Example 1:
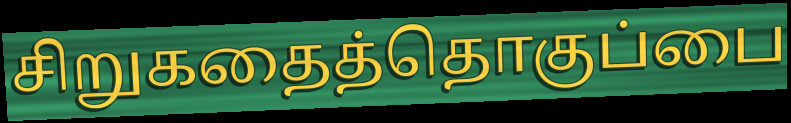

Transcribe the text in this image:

சிறுகதைத்தொகுப்பை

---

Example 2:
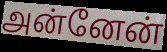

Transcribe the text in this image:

அன்னேன்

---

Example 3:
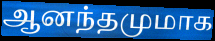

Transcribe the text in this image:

ஆனந்தமுமாக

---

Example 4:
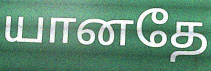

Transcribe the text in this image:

யானதே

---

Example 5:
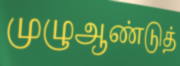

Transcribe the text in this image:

முழுஆண்டுத்